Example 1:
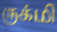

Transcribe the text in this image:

ருக்மி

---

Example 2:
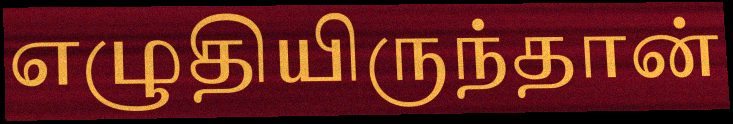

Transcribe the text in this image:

எழுதியிருந்தான்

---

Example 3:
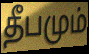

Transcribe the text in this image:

தீபமும்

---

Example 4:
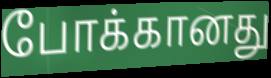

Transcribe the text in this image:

போக்கானது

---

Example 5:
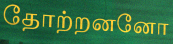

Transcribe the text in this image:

தோற்றனனோ